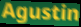
Agustin